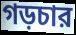
গড়চার